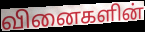
வினைகளின்